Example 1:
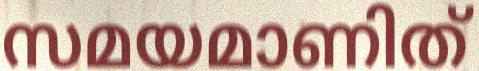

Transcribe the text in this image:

സമയമാണിത്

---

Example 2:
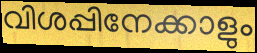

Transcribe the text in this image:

വിശപ്പിനേക്കാളും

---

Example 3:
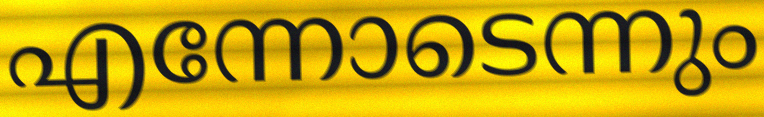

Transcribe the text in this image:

എന്നോടെന്നും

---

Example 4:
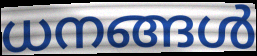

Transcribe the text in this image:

ധനങ്ങൾ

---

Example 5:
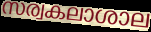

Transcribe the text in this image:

സര്വകലാശാല